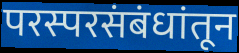
परस्परसंबंधांतून